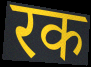
रक